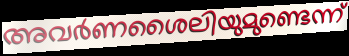
അവർണശൈലിയുമുണ്ടെന്ന്